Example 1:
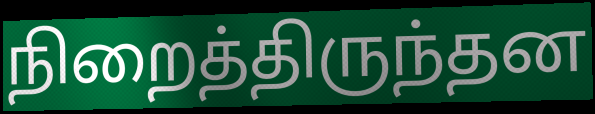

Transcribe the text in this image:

நிறைத்திருந்தன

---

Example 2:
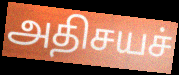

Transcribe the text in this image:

அதிசயச்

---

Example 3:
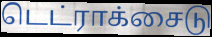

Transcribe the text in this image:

டெட்ராக்சைடு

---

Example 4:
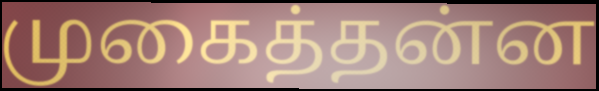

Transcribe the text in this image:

முகைத்தன்ன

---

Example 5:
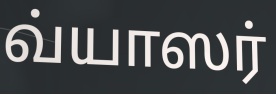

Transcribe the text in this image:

வ்யாஸர்